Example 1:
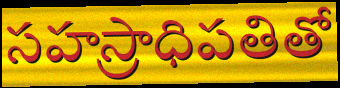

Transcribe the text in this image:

సహస్రాధిపతితో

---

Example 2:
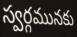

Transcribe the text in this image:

స్వర్గమునకు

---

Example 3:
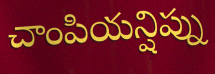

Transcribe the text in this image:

చాంపియన్షిప్ను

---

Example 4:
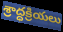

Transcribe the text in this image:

శ్రాద్ధక్రియలు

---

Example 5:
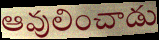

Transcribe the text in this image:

ఆవులించాడు